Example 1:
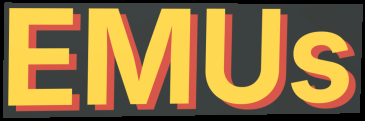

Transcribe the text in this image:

EMUs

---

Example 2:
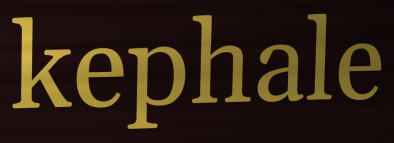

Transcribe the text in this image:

kephale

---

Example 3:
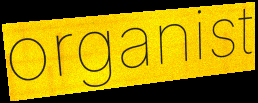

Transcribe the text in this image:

organist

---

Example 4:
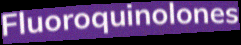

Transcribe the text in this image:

Fluoroquinolones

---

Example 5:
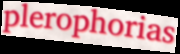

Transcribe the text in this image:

plerophorias